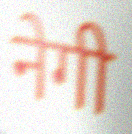
नेगी